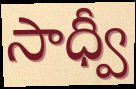
సాధ్వీ